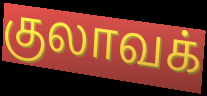
குலாவக்